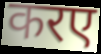
करए